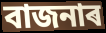
বাজনাৰ